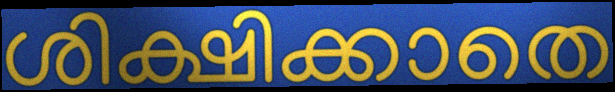
ശിക്ഷിക്കാതെ